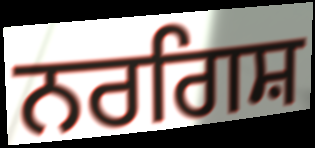
ਨਰਗਿਸ਼